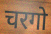
चरगो